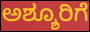
ಅಶ್ಶೂರಿಗೆ